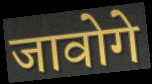
जावोगे